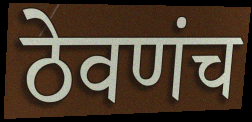
ठेवणंच